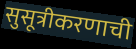
सुसूत्रीकरणाची